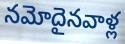
నమోదైనవాళ్ల